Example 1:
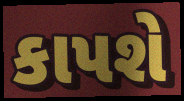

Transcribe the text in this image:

કાપશે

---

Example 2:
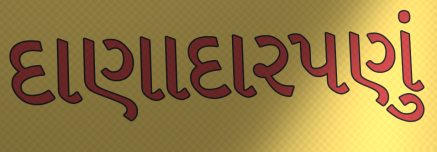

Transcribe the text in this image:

દાણાદારપણું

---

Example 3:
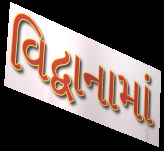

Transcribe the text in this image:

વિદ્વાનામાં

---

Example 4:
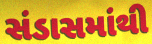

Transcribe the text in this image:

સંડાસમાંથી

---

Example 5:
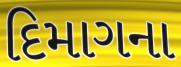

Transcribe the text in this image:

દિમાગના